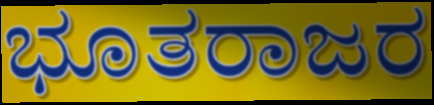
ಭೂತರಾಜರ